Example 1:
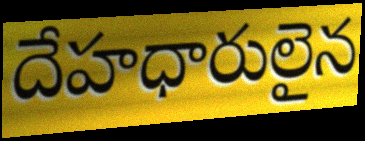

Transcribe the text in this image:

దేహధారులైన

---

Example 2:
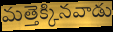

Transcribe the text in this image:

మత్తెక్కినవాడు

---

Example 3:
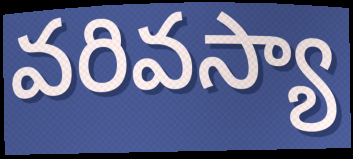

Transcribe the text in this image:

వరివస్యా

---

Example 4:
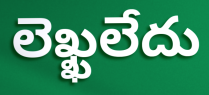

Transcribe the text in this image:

లెఖ్ఖలేదు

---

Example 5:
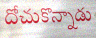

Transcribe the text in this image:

దోచుకొన్నాడు